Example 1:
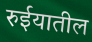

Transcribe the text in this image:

रुईयातील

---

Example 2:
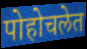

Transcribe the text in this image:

पोहोचलेत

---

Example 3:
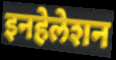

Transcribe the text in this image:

इनहेलेशन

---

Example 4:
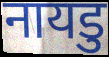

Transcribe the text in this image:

नायडु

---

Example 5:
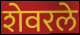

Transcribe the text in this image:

शेवरले